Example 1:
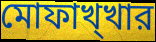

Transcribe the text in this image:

মোফাখ্খার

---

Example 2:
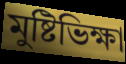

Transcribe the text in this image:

মুষ্টিভিক্ষা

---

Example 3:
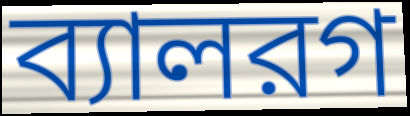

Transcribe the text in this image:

ব্যালরগ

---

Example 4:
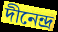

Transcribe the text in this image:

দীনেন্দ্র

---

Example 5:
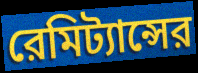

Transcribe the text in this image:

রেমিট্যান্সের